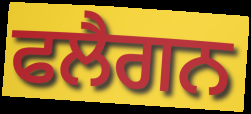
ਫਲੈਗਨ